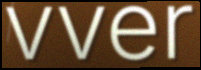
vver